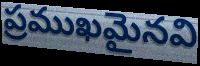
ప్రముఖమైనవి